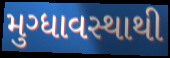
મુગ્ધાવસ્થાથી